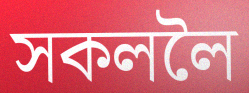
সকললৈ